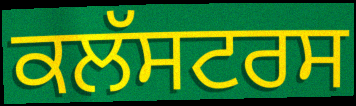
ਕਲੱਸਟਰਸ